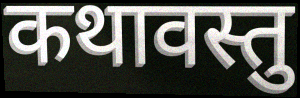
कथावस्तु